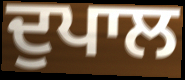
ਦੁਪਾਲ